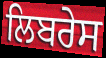
ਲਿਬਰੇਸ